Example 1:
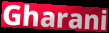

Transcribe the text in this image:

Gharani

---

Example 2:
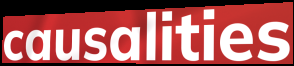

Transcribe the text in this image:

causalities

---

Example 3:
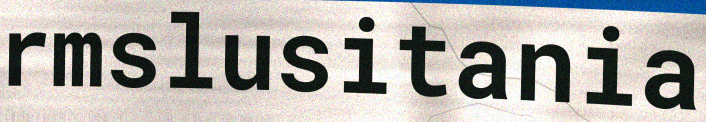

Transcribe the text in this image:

rmslusitania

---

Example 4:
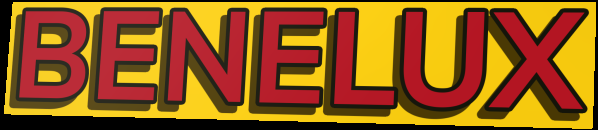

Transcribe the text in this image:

BENELUX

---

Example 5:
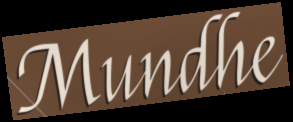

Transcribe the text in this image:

Mundhe